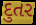
દુતર